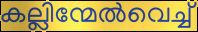
കല്ലിന്മേൽവെച്ച്